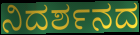
ನಿದರ್ಶನದ